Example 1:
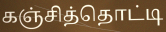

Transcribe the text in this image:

கஞ்சித்தொட்டி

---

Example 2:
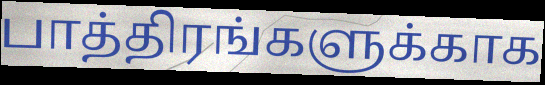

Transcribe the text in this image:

பாத்திரங்களுக்காக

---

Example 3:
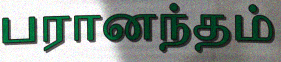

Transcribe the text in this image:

பரானந்தம்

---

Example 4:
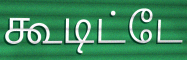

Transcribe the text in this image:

கூடிட்டே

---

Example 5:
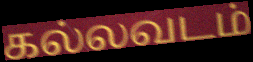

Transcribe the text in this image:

கல்லவடம்